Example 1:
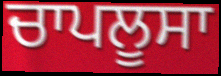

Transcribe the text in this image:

ਚਾਪਲੂਸਾ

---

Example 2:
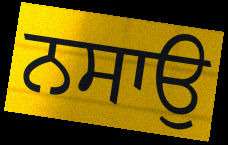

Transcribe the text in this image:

ਨਸਾਉ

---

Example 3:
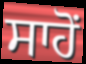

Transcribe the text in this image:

ਸਾਹੋਂ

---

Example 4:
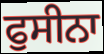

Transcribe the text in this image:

ਫੁਸੀਨਾ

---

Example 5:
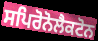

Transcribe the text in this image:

ਸਪਿਰੋਨੋਲੈਕਟੋਨ